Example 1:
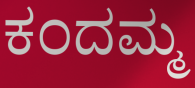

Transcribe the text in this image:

ಕಂದಮ್ಮ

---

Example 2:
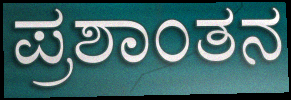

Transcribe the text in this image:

ಪ್ರಶಾಂತನ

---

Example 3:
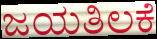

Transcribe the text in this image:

ಜಯತಿಲಕೆ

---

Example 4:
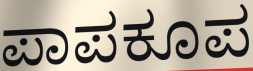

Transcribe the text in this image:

ಪಾಪಕೂಪ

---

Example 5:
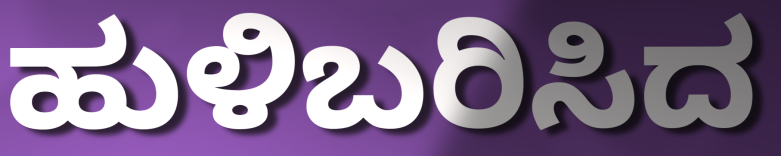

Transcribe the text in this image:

ಹುಳಿಬರಿಸಿದ